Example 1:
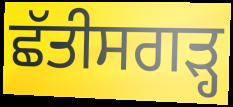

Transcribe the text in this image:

ਛੱਤੀਸਗੜ੍ਹ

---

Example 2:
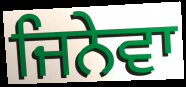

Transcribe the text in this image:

ਜਿਨੇਵਾ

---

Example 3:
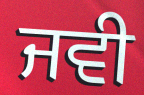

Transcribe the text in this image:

ਜਵੀ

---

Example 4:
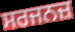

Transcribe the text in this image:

ਸਰਜਨਜ਼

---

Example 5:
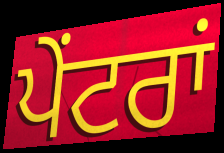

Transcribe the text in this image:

ਪੇਂਟਰਾਂ